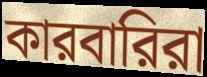
কারবারিরা